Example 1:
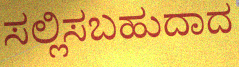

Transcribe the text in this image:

ಸಲ್ಲಿಸಬಹುದಾದ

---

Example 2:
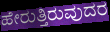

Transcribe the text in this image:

ಹೇರುತ್ತಿರುವುದರ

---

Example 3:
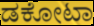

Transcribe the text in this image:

ಡಕೋಟಾ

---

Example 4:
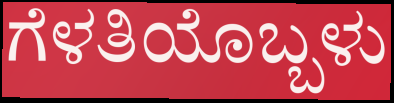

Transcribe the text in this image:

ಗೆಳತಿಯೊಬ್ಬಳು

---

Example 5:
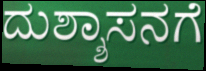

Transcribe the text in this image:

ದುಶ್ಶಾಸನಗೆ